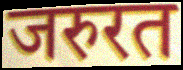
जरुरत